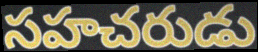
సహచరుడు